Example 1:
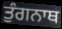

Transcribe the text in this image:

ਤੁੰਗਨਾਥ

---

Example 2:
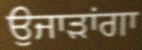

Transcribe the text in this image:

ਉਜਾੜਾਂਗਾ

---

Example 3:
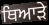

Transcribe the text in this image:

ਥਿਆੜੇ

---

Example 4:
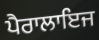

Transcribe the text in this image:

ਪੈਰਾਲਾਇਜ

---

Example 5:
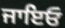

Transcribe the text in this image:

ਜਾਇਓ